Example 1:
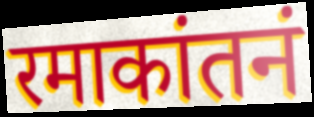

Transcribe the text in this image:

रमाकांतनं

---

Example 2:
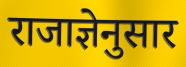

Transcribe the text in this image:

राजाज्ञेनुसार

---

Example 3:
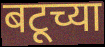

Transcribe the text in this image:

बटूच्या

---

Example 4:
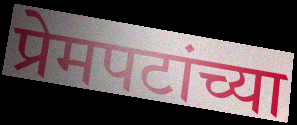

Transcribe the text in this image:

प्रेमपटांच्या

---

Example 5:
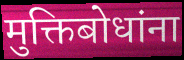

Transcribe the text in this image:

मुक्तिबोधांना